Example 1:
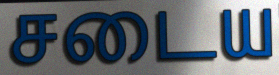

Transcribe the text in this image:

சடைய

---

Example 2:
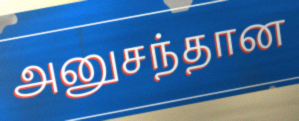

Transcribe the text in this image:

அனுசந்தான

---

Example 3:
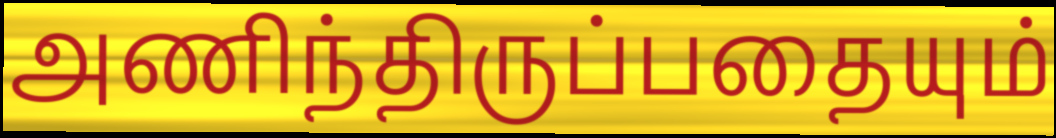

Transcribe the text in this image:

அணிந்திருப்பதையும்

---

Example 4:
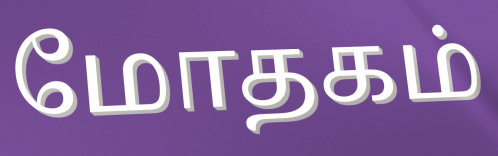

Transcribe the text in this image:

மோதகம்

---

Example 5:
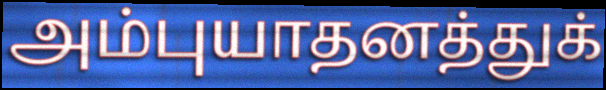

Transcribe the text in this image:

அம்புயாதனத்துக்